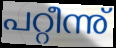
പറ്റീന്നു്